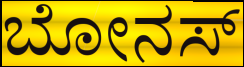
ಬೋನಸ್